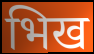
भिख